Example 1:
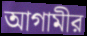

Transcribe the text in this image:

আগামীর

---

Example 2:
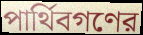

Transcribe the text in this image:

পার্থিবগণের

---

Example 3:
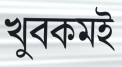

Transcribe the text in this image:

খুবকমই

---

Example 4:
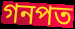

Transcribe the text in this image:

গনপত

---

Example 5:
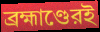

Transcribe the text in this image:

ব্রহ্মাণ্ডেরই